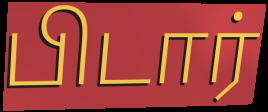
பிடார்